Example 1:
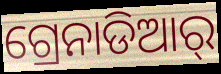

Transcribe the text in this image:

ଗ୍ରେନାଡିଆର୍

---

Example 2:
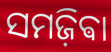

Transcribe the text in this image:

ସମଜ଼ିଵା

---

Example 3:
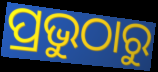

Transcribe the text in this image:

ପ୍ରଭୁଠାରୁ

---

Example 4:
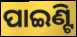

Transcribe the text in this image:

ପାଇଣ୍ଟି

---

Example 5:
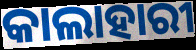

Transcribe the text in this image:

କାଲାହାରୀ